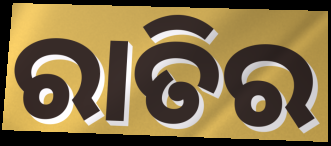
ରାତିର